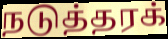
நடுத்தரக்